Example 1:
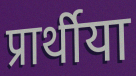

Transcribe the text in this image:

प्रार्थीया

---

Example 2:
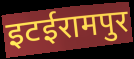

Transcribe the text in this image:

इटईरामपुर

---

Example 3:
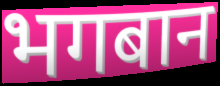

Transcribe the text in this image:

भगबान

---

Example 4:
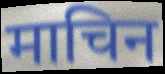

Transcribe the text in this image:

माचिन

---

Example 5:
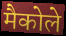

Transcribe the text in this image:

मैकोले